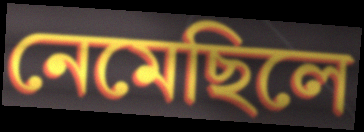
নেমেছিলে